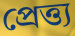
প্রেত্ত্য